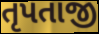
તૃપતાજી